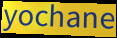
yochane